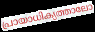
പ്രായാധിക്യത്താലോ